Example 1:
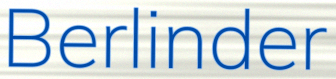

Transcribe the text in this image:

Berlinder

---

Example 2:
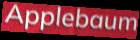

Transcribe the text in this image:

Applebaum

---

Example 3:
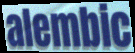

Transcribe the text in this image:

alembic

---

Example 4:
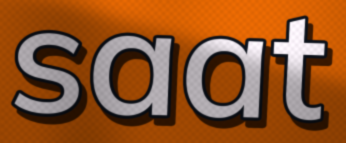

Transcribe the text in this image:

saat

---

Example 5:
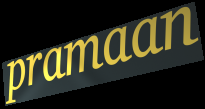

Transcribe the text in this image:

pramaan